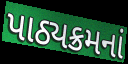
પાઠ્યક્રમનાં